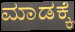
ಮಾಡಕ್ಕೆ